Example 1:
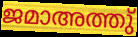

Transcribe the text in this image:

ജമാഅത്തു്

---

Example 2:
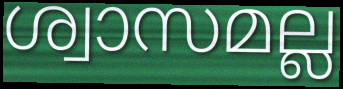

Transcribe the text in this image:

ശ്വാസമല്ല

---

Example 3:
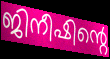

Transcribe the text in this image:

ജിനീഷിന്റെ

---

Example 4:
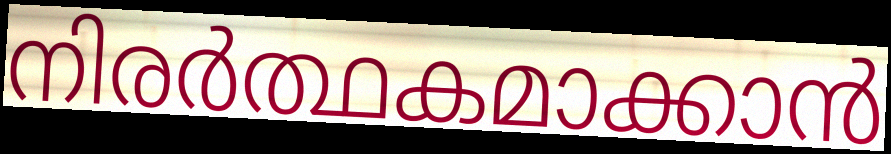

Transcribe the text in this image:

നിരർത്ഥകമാക്കാൻ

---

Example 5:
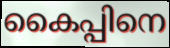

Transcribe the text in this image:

കൈപ്പിനെ